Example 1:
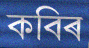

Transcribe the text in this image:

কবিৰ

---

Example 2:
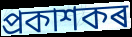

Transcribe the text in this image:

প্ৰকাশকৰ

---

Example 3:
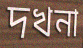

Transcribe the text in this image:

দখনা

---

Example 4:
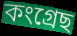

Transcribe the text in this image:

কংগ্ৰেছ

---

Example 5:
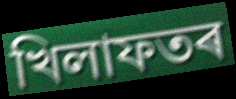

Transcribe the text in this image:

খিলাফতৰ